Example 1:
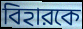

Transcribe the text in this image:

বিহারকে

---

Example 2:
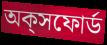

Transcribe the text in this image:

অক্‌সফোর্ড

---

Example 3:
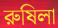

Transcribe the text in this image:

রুষিলা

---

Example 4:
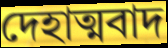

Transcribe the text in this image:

দেহাত্মবাদ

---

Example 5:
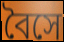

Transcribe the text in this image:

বৈসে